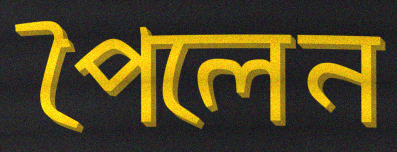
পৈলেন